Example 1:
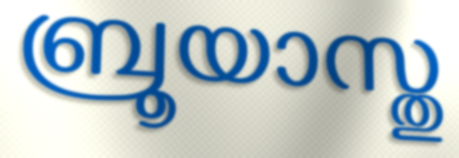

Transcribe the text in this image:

ബ്രൂയാസ്തു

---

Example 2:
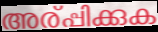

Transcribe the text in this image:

അര്പ്പിക്കുക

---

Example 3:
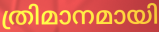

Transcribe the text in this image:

ത്രിമാനമായി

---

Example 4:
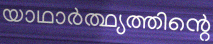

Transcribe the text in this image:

യാഥാർത്ഥ്യത്തിന്റെ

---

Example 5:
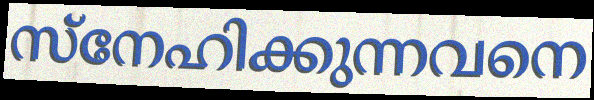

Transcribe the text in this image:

സ്നേഹിക്കുന്നവനെ